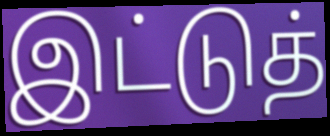
இட்டுத்